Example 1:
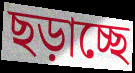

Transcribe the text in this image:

ছড়াচ্ছে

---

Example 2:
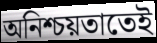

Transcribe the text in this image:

অনিশ্চয়তাতেই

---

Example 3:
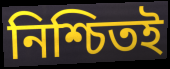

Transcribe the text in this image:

নিশ্চিতই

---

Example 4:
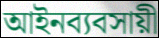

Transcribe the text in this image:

আইনব্যবসায়ী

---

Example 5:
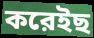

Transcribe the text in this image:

করেইছ